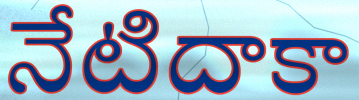
నేటిదాకా